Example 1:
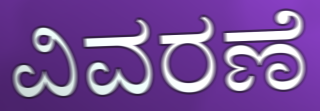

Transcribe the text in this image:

ವಿವರಣೆ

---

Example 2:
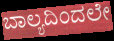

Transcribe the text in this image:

ಬಾಲ್ಯದಿಂದಲೇ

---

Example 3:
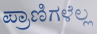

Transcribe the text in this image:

ಪ್ರಾಣಿಗಳೆಲ್ಲ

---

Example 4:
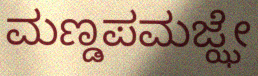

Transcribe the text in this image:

ಮಣ್ಡಪಮಜ್ಝೇ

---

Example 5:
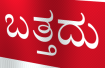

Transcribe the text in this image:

ಬತ್ತದು